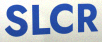
SLCR